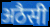
अठैसी